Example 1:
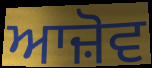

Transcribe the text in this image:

ਆਜ਼ੋਵ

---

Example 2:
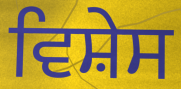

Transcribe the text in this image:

ਵਿਸ਼ੇਸ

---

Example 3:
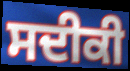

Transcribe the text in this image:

ਸਦੀਕੀ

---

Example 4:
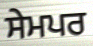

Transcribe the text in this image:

ਸੇਮਪਰ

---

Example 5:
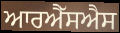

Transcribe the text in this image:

ਆਰਐੱਸਐਸ